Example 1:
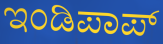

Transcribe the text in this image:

ಇಂಡಿಪಾಪ್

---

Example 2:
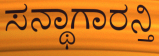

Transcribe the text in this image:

ಸನ್ಥಾಗಾರನ್ತಿ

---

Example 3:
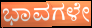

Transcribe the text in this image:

ಭಾವಗಳೇ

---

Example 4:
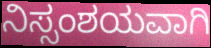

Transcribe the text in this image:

ನಿಸ್ಸಂಶಯವಾಗಿ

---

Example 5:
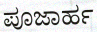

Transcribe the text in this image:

ಪೂಜಾರ್ಹ